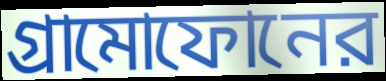
গ্রামোফোনের